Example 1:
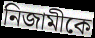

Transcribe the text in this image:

নিজামীকে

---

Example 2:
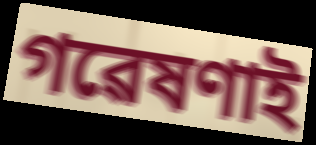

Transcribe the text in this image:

গৱেষণাই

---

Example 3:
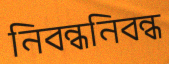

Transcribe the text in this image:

নিবন্ধনিবন্ধ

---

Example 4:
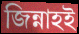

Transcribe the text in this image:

জিন্নাহই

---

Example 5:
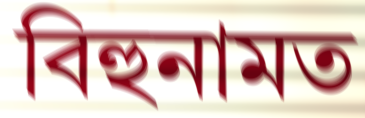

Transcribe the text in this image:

বিহুনামত